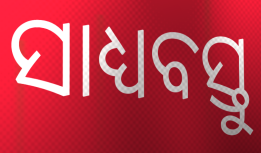
ସାଧ୍ୟବସ୍ତୁ